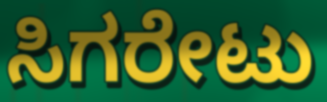
ಸಿಗರೇಟು